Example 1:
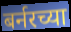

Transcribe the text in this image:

बर्नरच्या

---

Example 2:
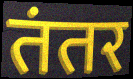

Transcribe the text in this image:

तंतर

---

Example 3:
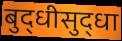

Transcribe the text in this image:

बुद्धीसुद्धा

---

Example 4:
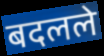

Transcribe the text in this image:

बदलले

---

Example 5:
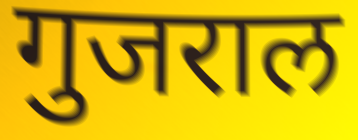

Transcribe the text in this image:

गुजराल